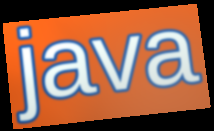
java